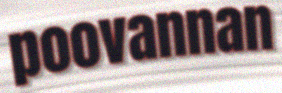
poovannan